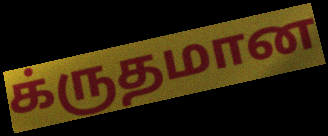
க்ருதமான